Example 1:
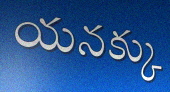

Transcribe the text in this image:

యనక్కు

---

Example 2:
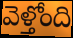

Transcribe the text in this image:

వెళ్తోంది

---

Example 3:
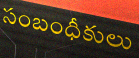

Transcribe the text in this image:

సంబంధీకులు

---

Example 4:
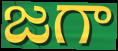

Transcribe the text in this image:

జగా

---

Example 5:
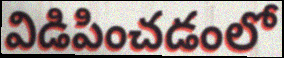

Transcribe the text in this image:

విడిపించడంలో